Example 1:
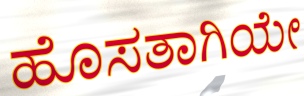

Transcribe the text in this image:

ಹೊಸತಾಗಿಯೇ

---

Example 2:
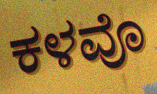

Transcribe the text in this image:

ಕಳವೊ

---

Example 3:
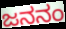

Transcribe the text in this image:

ಜನನಂ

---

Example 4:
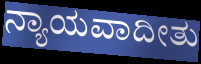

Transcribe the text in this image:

ನ್ಯಾಯವಾದೀತು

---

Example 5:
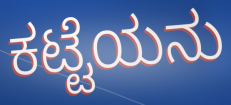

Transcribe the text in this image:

ಕಟ್ಟೆಯನು